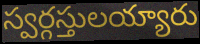
స్వర్గస్తులయ్యారు